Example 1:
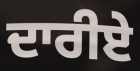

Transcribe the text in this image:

ਦਾਰੀਏ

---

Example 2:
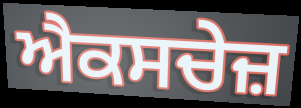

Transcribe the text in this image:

ਐਕਸਚੇਜ਼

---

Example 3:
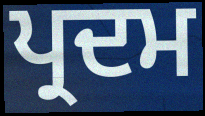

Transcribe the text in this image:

ਪ੍ਰਦਮ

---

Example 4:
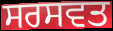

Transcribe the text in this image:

ਸਰਸਵਤ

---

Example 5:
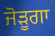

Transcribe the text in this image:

ਜੋੜੂਗਾ